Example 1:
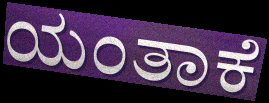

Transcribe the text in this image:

ಯಂತಾಕೆ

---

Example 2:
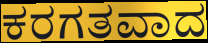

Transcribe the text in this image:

ಕರಗತವಾದ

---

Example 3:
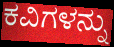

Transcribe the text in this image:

ಕವಿಗಳನ್ನು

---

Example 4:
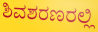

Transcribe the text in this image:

ಶಿವಶರಣರಲ್ಲಿ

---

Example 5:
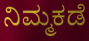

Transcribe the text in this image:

ನಿಮ್ಮಕಡೆ